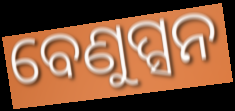
ବେଣୁପ୍ସନ